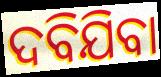
ଦବିଯିବା